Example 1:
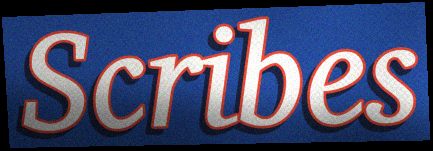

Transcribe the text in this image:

Scribes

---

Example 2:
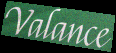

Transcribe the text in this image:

Valance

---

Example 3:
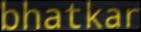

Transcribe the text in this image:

bhatkar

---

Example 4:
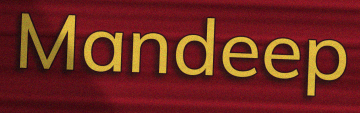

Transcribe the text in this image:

Mandeep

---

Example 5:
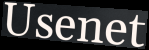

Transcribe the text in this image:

Usenet